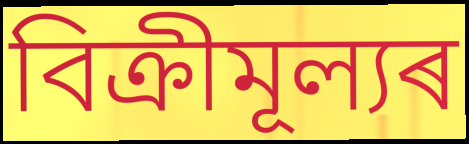
বিক্ৰীমূল্যৰ